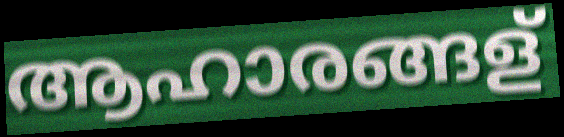
ആഹാരങ്ങള്